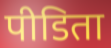
पीडिता